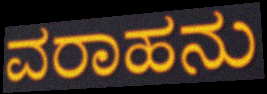
ವರಾಹನು